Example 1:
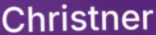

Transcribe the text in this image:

Christner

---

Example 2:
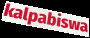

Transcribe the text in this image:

kalpabiswa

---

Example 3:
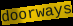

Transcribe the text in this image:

doorways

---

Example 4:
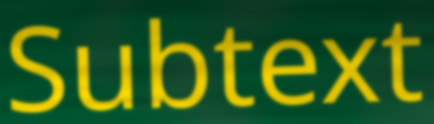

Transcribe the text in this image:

Subtext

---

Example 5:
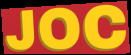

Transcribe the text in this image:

JOC